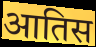
आतिस